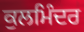
ਕੁਲਮਿੰਦਰ